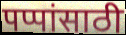
पप्पांसाठी